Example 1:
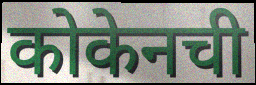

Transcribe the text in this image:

कोकेनची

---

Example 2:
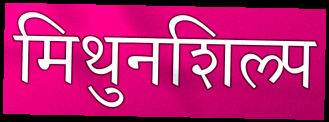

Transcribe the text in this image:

मिथुनशिल्प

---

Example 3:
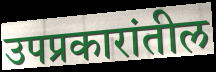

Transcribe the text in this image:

उपप्रकारांतील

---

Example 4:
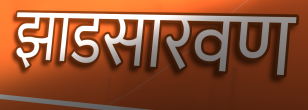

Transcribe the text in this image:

झाडसारवण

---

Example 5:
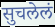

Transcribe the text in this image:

सुचलेलं